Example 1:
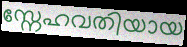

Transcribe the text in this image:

സ്നേഹവതിയായ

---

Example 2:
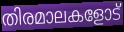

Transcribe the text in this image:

തിരമാലകളോട്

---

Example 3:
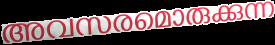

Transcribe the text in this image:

അവസരമൊരുക്കുന്ന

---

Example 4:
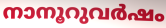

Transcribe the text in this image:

നാനൂറുവർഷം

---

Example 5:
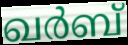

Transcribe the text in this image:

ഖർബ്